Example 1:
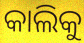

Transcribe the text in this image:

କାଲିକୁ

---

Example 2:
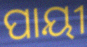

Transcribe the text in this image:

ପାୟୀ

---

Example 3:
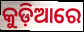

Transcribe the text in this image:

କୁଡ଼ିଆରେ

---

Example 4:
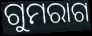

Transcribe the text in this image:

ଗୁମରାଗ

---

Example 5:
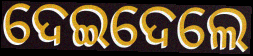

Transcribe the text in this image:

ଦେଇଦେଲେ